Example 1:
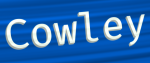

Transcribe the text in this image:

Cowley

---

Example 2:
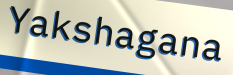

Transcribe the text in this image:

Yakshagana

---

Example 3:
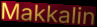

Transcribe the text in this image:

Makkalin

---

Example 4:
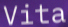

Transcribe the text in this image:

Vita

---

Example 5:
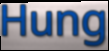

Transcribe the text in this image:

Hung